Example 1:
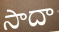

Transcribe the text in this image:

సాదా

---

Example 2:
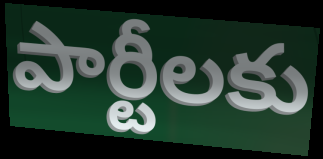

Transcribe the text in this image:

పార్టీలకు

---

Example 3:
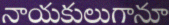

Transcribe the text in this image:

నాయకులుగానూ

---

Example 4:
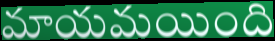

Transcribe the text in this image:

మాయమయింది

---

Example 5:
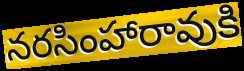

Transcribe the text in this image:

నరసింహారావుకి